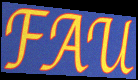
FAU